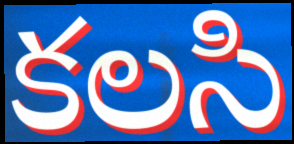
కలసి